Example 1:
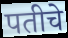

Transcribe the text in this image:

पतीचे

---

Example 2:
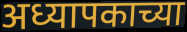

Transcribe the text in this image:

अध्यापकाच्या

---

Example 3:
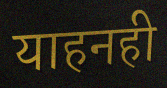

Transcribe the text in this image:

याहनही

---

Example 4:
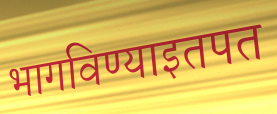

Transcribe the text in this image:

भागविण्याइतपत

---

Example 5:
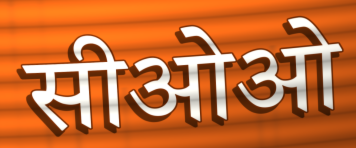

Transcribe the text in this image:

सीओओ